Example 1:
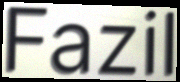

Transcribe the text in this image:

Fazil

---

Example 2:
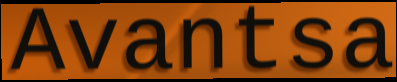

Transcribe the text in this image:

Avantsa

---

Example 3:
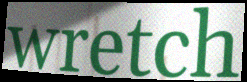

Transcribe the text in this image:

wretch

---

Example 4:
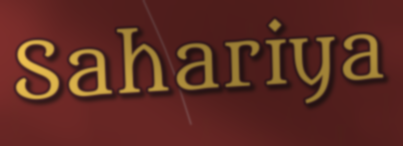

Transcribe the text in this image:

Sahariya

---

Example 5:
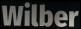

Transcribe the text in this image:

Wilber